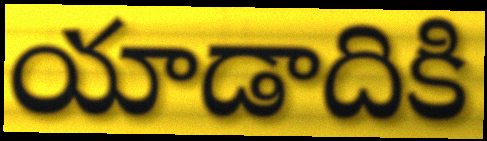
యాడాదికి